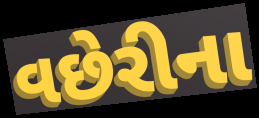
વછેરીના